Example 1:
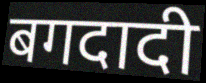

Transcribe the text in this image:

बगदादी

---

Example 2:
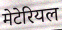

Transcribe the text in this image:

मेटेरियल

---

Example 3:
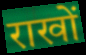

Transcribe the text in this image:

राखों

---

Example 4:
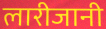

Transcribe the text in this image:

लारीजानी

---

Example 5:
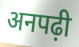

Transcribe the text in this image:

अनपढ़ी